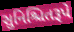
સુનિશ્ચિતરૂપે